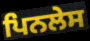
ਪਿਨਲੇਸ